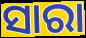
ସାରା